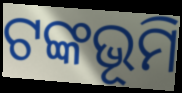
ଟଙ୍କଭୂମି